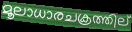
മൂലാധാരചക്രത്തില്